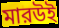
মারউই